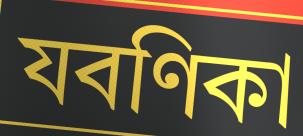
যবণিকা